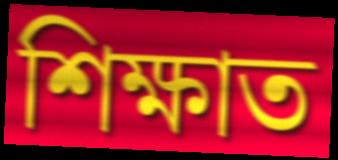
শিক্ষাত